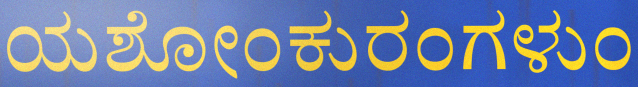
ಯಶೋಂಕುರಂಗಳುಂ